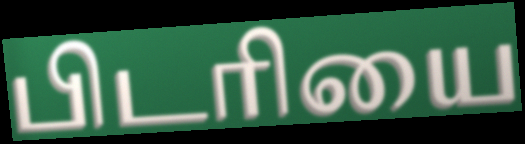
பிடரியை